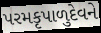
પરમકૃપાળુદેવને